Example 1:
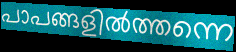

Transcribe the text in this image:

പാപങ്ങളിൽത്തന്നെ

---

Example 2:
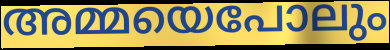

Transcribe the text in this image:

അമ്മയെപോലും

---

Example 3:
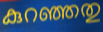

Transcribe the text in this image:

കുറഞ്ഞതു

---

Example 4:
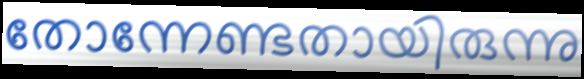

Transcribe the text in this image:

തോന്നേണ്ടതായിരുന്നു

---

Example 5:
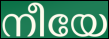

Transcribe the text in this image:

നീയേ